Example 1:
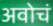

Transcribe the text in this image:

अवोचं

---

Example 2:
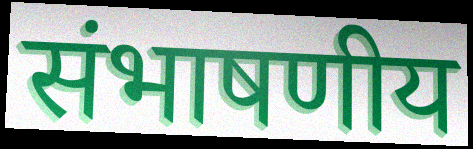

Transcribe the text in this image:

संभाषणीय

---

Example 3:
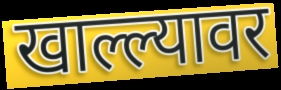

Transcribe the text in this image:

खाल्ल्यावर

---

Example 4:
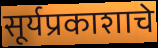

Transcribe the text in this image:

सूर्यप्रकाशाचे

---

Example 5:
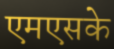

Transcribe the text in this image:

एमएसके